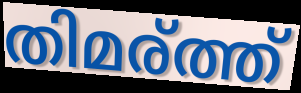
തിമര്ത്ത്